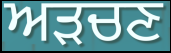
ਅੜਚਣ